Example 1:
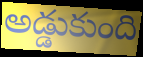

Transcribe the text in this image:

అడ్డుకుంది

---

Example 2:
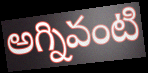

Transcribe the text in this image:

అగ్నివంటి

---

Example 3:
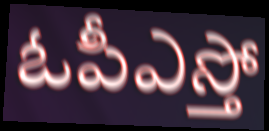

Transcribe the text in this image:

ఓపీఎస్తో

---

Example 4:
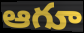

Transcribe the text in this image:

ఆగూ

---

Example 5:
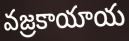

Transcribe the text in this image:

వజ్రకాయాయ